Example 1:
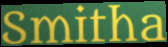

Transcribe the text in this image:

Smitha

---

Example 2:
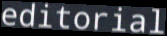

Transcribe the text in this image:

editorial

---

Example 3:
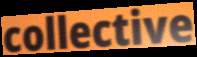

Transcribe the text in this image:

collective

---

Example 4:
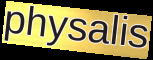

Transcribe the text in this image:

physalis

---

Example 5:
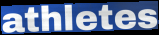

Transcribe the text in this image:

athletes